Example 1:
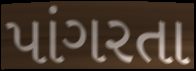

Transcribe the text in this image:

પાંગરતા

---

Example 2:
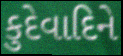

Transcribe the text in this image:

કુદેવાદિને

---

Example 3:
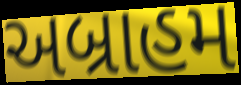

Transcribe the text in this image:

અબ્રાહમ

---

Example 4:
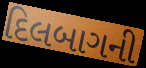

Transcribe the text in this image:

દિલબાગની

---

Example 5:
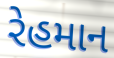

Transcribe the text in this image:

રેહમાન